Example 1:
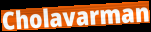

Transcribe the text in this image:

Cholavarman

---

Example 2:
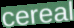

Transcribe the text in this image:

cereal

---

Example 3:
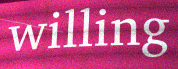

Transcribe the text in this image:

willing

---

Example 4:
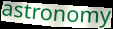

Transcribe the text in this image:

astronomy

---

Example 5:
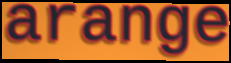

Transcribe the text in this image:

arange